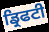
ਡ੍ਰਿਫਟੀ